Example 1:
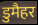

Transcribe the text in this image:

डुमैहर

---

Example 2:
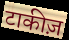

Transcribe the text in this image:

टाकीज़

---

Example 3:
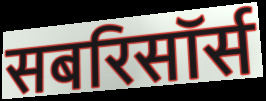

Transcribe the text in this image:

सबरिसॉर्स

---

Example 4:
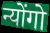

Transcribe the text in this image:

न्योंगो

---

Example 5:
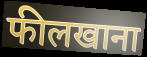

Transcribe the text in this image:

फीलखाना